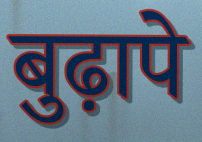
बुढ़ापे